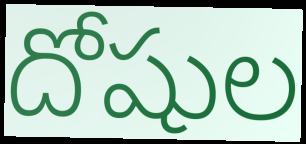
దోషుల